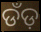
ଡଁଡ଼